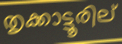
തൃക്കാട്ടൂരില്